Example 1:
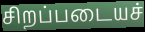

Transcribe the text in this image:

சிறப்படையச்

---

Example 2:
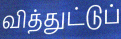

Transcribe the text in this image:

வித்துட்டுப்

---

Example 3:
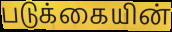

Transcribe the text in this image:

படுக்கையின்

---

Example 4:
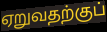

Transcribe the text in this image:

ஏறுவதற்குப்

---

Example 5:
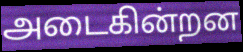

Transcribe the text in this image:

அடைகின்றன